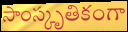
సాంస్కృతికంగా